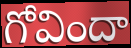
గోవిందా